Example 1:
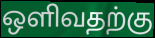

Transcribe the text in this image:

ஒளிவதற்கு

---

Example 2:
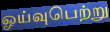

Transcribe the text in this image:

ஓய்வுபெற்று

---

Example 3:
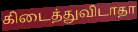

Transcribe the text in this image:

கிடைத்துவிடாதா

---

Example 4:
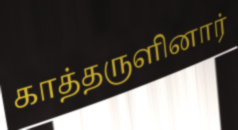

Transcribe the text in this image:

காத்தருளினார்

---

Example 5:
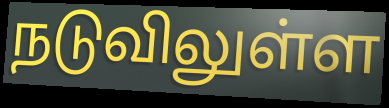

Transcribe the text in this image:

நடுவிலுள்ள